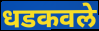
धडकवले